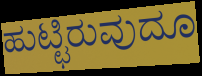
ಹುಟ್ಟಿರುವುದೂ